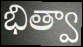
భిత్వా